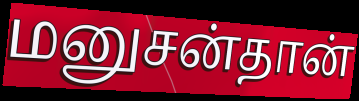
மனுசன்தான்